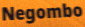
Negombo